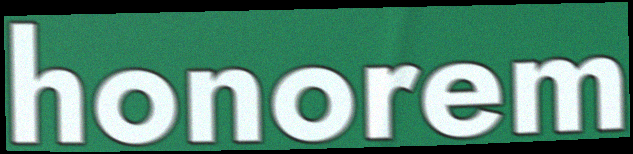
honorem